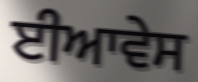
ਈਆਵੇਸ